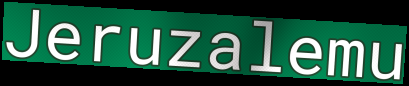
Jeruzalemu